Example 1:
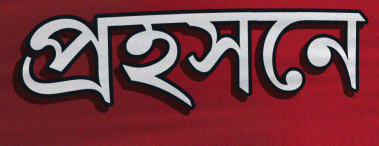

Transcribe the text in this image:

প্রহসনে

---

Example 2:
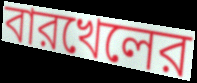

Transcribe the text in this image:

বারখেলের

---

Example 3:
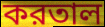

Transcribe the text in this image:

করতাল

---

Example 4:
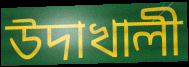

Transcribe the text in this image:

উদাখালী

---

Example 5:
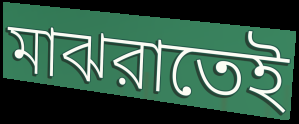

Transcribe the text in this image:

মাঝরাতেই